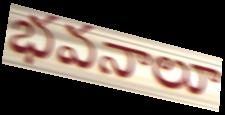
భవనాలూ